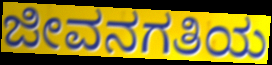
ಜೀವನಗತಿಯ